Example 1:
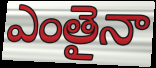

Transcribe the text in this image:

ఎంతైనా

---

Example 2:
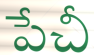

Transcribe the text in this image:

పేచీ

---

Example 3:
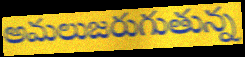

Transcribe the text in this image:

అమలుజరుగుతున్న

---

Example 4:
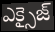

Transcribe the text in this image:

ఎక్సైజ్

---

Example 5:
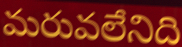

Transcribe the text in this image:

మరువలేనిది